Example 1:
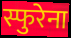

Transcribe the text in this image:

स्फुरेना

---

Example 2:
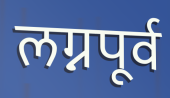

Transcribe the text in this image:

लग्नपूर्व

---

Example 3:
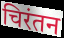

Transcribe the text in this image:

चिरंतन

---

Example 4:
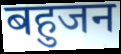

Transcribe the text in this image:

बहुजन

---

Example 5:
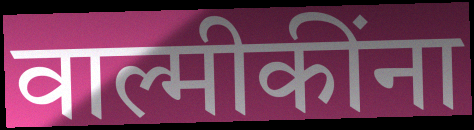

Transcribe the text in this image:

वाल्मीकींना